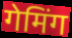
गेमिंग